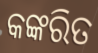
କଙ୍କରିତ